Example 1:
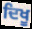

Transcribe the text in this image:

ਦਿਖੂ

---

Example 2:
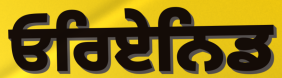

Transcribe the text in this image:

ਓਰਿਏਨਿਡ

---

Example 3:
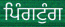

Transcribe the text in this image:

ਪਿੰਗਟੁੰਗ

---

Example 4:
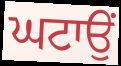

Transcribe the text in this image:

ਘਟਾਉਂ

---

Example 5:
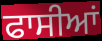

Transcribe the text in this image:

ਫਾਸੀਆਂ